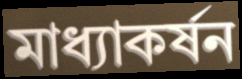
মাধ্যাকর্ষন